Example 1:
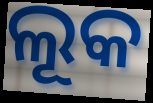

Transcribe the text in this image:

ଲୂକ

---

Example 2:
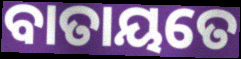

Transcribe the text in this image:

ବାତାୟତେ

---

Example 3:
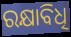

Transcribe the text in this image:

ରକ୍ଷାବିଧି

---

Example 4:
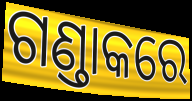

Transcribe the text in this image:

ଗଣ୍ଡାକରେ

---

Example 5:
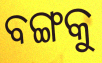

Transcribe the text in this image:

ବଙ୍ଗକୁ